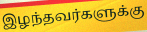
இழந்தவர்களுக்கு